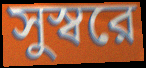
সুস্বরে